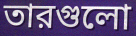
তারগুলো